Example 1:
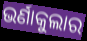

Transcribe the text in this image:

ଭର୍ଣାକୁଲାର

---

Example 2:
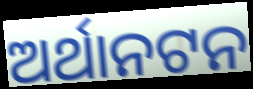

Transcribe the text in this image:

ଅର୍ଥାନଟନ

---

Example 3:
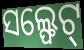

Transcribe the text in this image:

ସଲ୍ଫେଟ୍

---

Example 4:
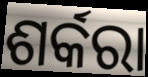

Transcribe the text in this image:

ଶର୍କରା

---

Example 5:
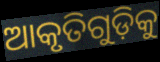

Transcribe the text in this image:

ଆକୃତିଗୁଡ଼ିକୁ